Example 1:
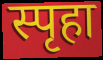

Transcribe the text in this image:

स्पृहा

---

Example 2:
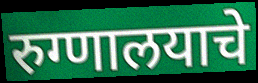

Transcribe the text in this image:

रुग्णालयाचे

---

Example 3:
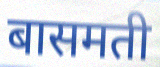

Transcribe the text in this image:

बासमती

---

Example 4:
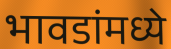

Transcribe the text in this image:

भावडांमध्ये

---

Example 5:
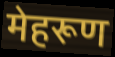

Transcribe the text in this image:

मेहरूण